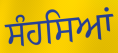
ਸੰਹਸਿਆਂ